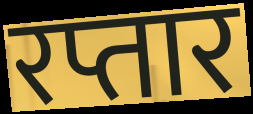
रप्तार